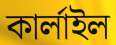
কার্লাইল